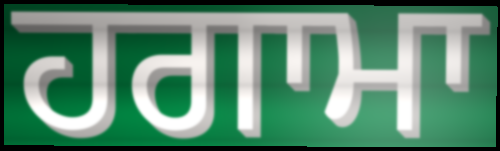
ਹਗਾਮਾ